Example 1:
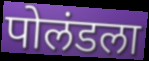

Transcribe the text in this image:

पोलंडला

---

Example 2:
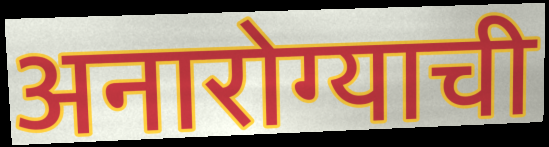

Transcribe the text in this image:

अनारोग्याची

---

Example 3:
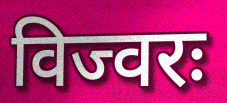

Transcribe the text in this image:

विज्वरः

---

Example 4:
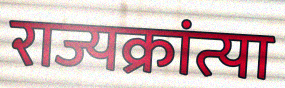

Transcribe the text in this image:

राज्यक्रांत्या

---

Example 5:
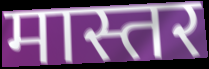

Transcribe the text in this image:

मास्तर